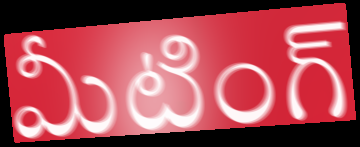
మీటింగ్